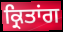
ਕ੍ਰਿਤਾਂਗ